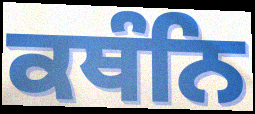
ਕਥੰਨਿ